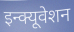
इन्क्यूवेशन